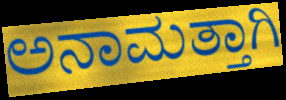
ಅನಾಮತ್ತಾಗಿ